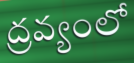
ద్రవ్యంలో